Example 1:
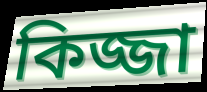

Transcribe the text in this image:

কিজ্জা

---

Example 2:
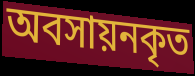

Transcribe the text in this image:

অবসায়নকৃত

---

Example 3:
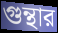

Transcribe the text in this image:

গুন্থার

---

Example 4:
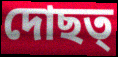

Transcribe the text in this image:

দোছত্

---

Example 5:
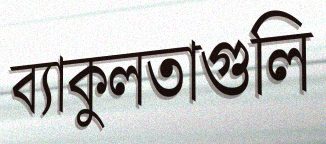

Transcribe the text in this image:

ব্যাকুলতাগুলি